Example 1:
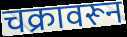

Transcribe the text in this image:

चक्रावरून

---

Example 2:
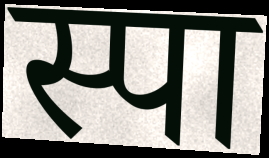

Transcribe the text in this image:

स्पा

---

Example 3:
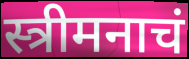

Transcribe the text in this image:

स्त्रीमनाचं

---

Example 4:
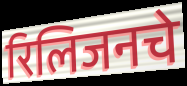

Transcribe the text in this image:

रिलिजनचे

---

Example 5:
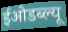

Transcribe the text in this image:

ईओडब्ल्यू